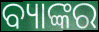
ବ୍ୟାଙ୍କର